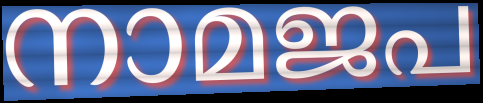
നാമജപ